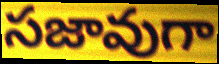
సజావుగా